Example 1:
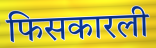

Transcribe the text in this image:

फिसकारली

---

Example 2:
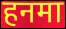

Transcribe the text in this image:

हनमा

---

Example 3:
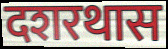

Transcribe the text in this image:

दशरथास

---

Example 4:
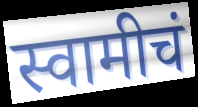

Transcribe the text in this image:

स्वामीचं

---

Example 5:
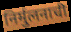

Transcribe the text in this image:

निर्मुलनाची